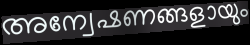
അന്വേഷണങ്ങളായും